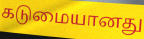
கடுமையானது